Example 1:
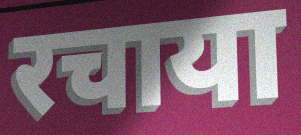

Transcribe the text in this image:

रचाया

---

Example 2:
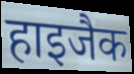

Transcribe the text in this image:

हाइजैक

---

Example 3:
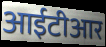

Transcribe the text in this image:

आईटीआर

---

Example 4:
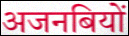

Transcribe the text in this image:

अजनबियों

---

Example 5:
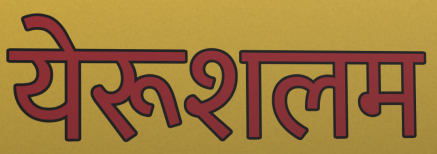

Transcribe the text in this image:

येरूशलम